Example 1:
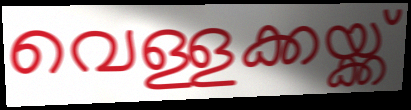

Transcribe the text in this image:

വെള്ളക്കയ്ക്ക്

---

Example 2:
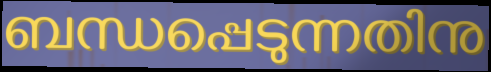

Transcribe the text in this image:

ബന്ധപ്പെടുന്നതിനു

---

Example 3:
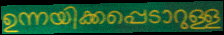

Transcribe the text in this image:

ഉന്നയിക്കപ്പെടാറുള്ള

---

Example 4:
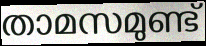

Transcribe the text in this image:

താമസമുണ്ട്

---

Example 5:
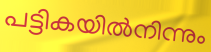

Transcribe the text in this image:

പട്ടികയിൽനിന്നും